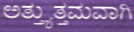
ಅತ್ತ್ಯುತ್ತಮವಾಗಿ